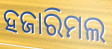
ହଜାରିମଲ